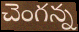
చెంగన్న